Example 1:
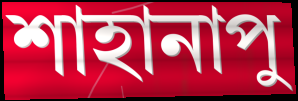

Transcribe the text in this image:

শাহানাপু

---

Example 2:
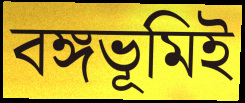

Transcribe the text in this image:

বঙ্গভূমিই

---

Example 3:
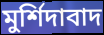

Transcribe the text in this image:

মুর্শিদাবাদ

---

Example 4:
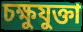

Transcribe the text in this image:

চক্ষুযুক্তা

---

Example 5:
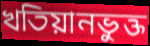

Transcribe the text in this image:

খতিয়ানভুক্ত